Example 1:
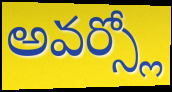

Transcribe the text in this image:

అవర్స్లో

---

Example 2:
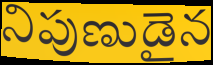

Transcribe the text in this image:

నిపుణుడైన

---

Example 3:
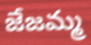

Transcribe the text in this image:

జేజమ్మ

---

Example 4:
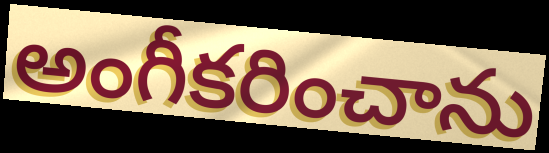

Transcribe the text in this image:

అంగీకరించాను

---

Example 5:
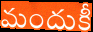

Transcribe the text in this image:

మందుకీ